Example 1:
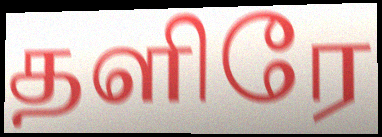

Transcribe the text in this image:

தளிரே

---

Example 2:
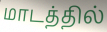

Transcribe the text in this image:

மாடத்தில்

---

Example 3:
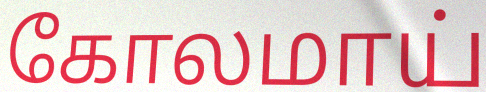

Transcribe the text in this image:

கோலமாய்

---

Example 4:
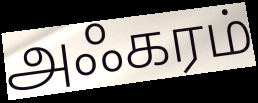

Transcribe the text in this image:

அஃகரம்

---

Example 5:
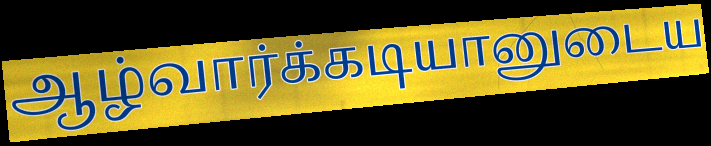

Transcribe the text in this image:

ஆழ்வார்க்கடியானுடைய